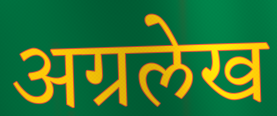
अग्रलेख